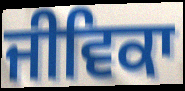
ਜੀਵਿਕਾ